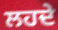
ਲਹਦੇ